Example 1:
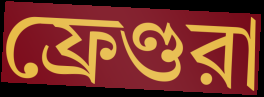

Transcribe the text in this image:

ফ্রেণ্ডরা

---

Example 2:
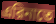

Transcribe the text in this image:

এরিনাতে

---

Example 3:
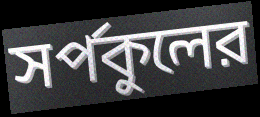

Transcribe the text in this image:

সর্পকুলের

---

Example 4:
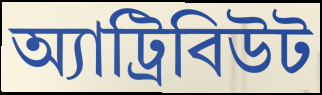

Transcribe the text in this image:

অ্যাট্রিবিউট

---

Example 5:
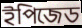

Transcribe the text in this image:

ইপিজেড